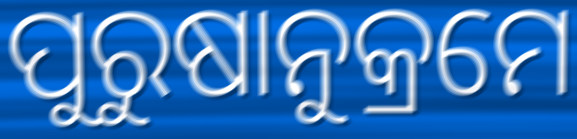
ପୁରୁଷାନୁକ୍ରମେ